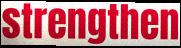
strengthen